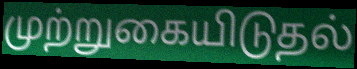
முற்றுகையிடுதல்